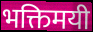
भक्तिमयी